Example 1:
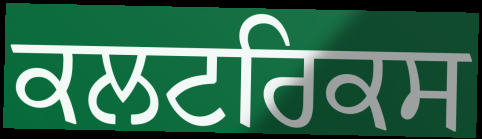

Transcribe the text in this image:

ਕਲਟਰਿਕਸ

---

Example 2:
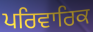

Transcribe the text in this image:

ਪਰਿਵਾਰਿਕ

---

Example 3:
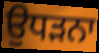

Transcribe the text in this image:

ਉਧੜਨਾ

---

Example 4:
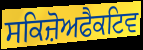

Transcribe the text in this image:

ਸਕਿਜ਼ੋਅਫੈਕਟਿਵ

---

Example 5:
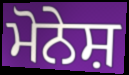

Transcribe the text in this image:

ਮੋਨੇਸ਼